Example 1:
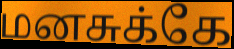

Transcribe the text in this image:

மனசுக்கே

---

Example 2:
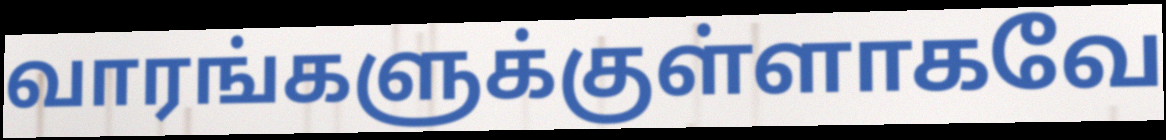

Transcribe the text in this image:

வாரங்களுக்குள்ளாகவே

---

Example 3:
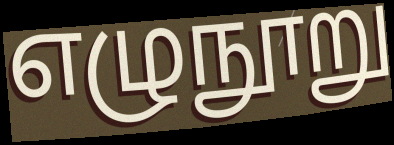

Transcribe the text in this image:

எழுநூறு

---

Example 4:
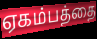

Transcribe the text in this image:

ஏகம்பத்தை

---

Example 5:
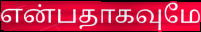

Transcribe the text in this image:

என்பதாகவுமே